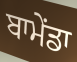
ਬਾਮੇਂਡਾ